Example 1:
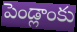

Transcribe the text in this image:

పెండ్లాంకు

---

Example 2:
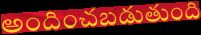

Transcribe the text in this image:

అందించబడుతుంది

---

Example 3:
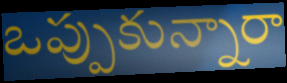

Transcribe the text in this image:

ఒప్పుకున్నారా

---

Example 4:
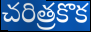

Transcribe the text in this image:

చరిత్రకొక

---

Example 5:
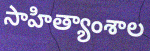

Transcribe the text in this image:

సాహిత్యాంశాల